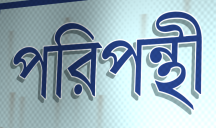
পরিপন্থী